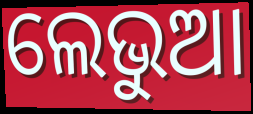
ଲେଭୁଆ